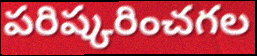
పరిష్కరించగల